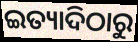
ଇତ୍ୟାଦିଠାରୁ